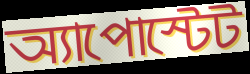
অ্যাপোস্টেট